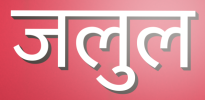
जलुल